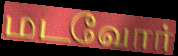
மடவோர்